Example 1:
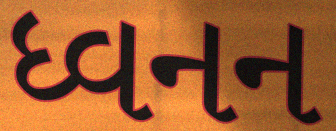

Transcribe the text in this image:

ધ્વનન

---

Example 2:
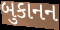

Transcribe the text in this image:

બુકાનન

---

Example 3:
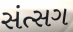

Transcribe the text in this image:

સંત્સગ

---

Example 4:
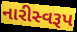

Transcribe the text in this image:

નારીસ્વરૂપ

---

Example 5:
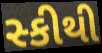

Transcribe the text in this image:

સ્કીથી